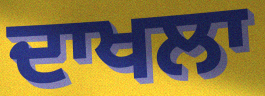
ਦਾਖਲਾ